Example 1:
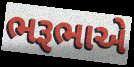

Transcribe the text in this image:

ભરૂભાએ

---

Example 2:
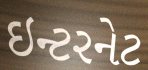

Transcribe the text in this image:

ઇન્ટરનેટ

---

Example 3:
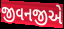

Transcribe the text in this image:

જીવનજીએ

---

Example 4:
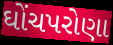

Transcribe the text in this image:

ઘોંચપરોણા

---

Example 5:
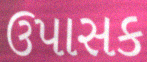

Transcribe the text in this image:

ઉપાસક